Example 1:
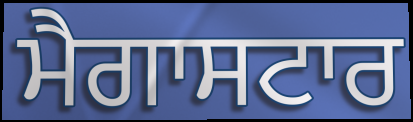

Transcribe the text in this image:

ਮੈਗਾਸਟਾਰ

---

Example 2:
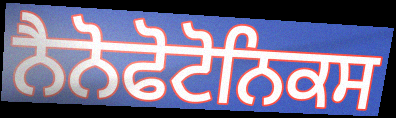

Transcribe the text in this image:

ਨੈਨੋਫੋਟੋਨਿਕਸ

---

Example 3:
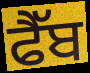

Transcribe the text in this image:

ਫੈੱਬ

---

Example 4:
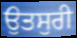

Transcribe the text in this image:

ਉਤਸੁਰੀ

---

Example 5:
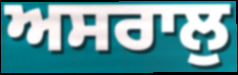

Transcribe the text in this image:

ਅਸਰਾਲੁ